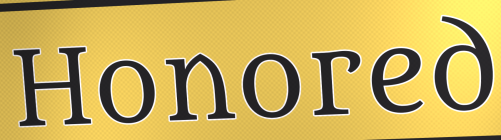
Honored